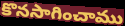
కొనసాగించాము